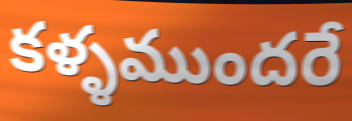
కళ్ళముందరే